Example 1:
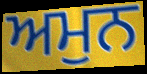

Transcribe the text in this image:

ਅਮੁਨ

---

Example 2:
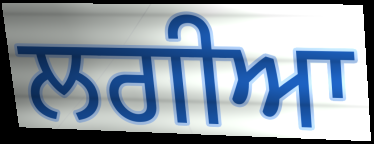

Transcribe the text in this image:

ਲਗੀਆ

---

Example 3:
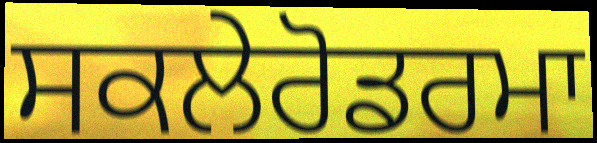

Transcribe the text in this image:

ਸਕਲੇਰੋਡਰਮਾ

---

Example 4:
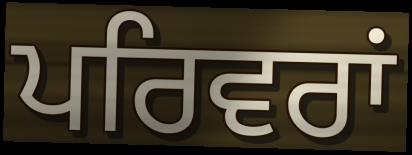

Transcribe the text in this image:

ਪਰਿਵਰਾਂ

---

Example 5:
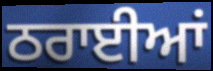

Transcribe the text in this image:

ਠਰਾਈਆਂ